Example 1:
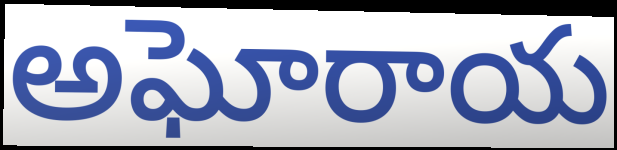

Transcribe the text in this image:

అఘోరాయ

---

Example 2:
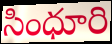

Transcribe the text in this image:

సింధూరి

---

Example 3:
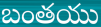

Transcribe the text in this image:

బంతయు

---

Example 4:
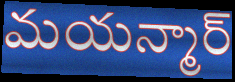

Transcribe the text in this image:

మయన్మార్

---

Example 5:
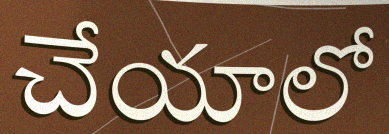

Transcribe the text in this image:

చేయాలో